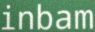
inbam